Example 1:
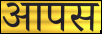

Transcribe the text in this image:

आपस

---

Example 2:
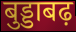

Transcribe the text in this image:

बुड्डाबढ़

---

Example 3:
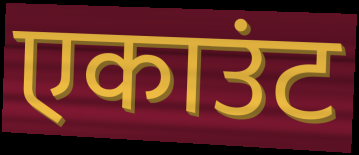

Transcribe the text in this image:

एकाउंट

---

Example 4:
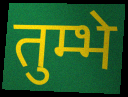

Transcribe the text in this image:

तुम्भे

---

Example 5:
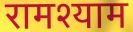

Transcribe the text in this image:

रामश्याम